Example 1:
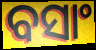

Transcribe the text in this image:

ବସାଂ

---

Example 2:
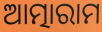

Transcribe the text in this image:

ଆତ୍ମାରାମ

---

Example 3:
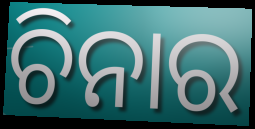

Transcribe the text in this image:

ଚିନାର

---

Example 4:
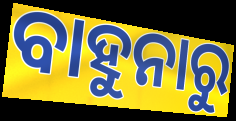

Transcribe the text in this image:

ବାହୁନାରୁ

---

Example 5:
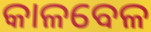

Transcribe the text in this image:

କାଳବେଳ